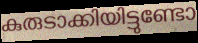
കുരുടാക്കിയിട്ടുണ്ടോ